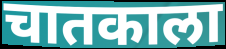
चातकाला